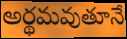
అర్థమవుతూనే